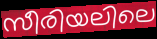
സീരിയലിലെ